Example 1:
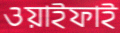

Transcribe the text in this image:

ওয়াইফাই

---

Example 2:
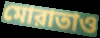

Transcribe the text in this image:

মোরাতাও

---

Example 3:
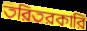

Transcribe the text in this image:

তরিতরকারি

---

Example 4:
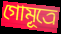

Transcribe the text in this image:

গোমূত্রে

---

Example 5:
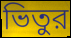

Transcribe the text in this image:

ভিতুর